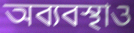
অব্যবস্থাও